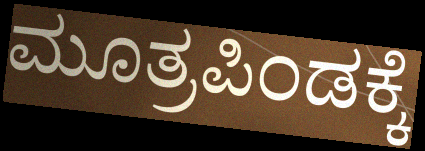
ಮೂತ್ರಪಿಂಡಕ್ಕೆ